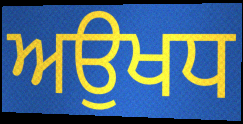
ਅਉਖਧ